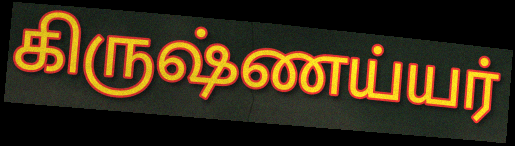
கிருஷ்ணய்யர்